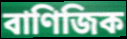
বাণিজিক